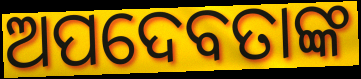
ଅପଦେବତାଙ୍କ